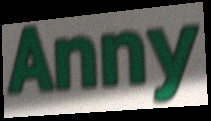
Anny